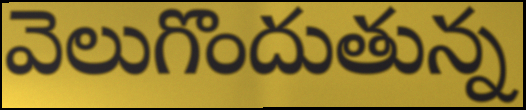
వెలుగొందుతున్న